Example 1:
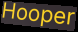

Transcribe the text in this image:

Hooper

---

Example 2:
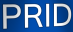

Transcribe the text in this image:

PRID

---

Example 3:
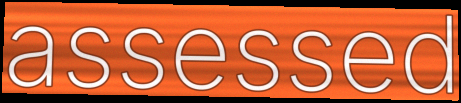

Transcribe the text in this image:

assessed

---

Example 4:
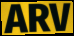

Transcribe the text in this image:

ARV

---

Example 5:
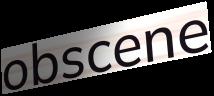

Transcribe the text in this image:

obscene